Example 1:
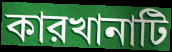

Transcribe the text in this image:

কারখানাটি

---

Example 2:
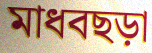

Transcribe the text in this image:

মাধবছড়া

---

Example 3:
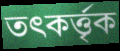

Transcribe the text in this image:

তৎকর্ত্তৃক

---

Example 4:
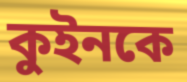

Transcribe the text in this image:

কুইনকে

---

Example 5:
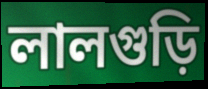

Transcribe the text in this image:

লালগুড়ি